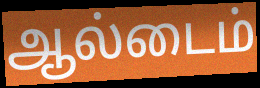
ஆல்டைம்